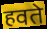
हवते